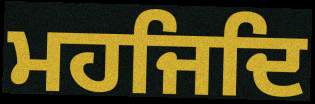
ਮਹਜਿਦਿ